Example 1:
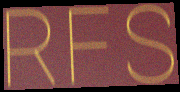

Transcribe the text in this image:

RFS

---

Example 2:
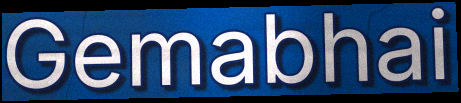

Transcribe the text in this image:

Gemabhai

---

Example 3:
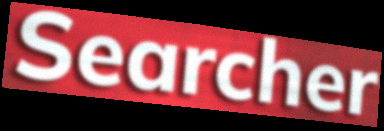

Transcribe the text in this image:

Searcher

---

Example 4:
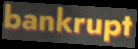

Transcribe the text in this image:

bankrupt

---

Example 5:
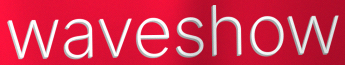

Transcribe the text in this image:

waveshow